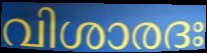
വിശാരദഃ